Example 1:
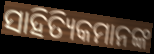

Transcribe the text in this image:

ସାହିତ୍ୟିକମାନଙ୍କ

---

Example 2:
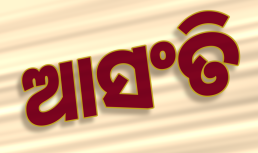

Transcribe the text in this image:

ଆସଂତି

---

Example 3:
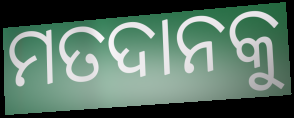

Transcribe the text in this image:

ମତଦାନକୁ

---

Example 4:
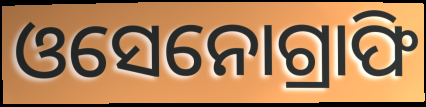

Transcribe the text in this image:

ଓସେନୋଗ୍ରାଫି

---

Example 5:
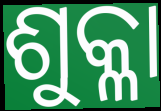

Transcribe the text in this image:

ଶୁକ୍ଳା